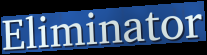
Eliminator